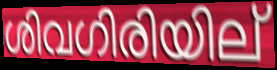
ശിവഗിരിയില്